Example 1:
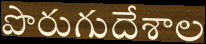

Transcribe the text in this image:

పొరుగుదేశాల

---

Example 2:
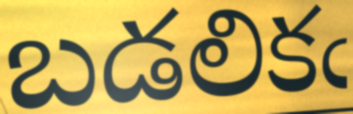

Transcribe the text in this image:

బడలికఁ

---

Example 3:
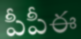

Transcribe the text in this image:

పీపీఈ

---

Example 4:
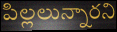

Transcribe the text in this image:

పిల్లలున్నారని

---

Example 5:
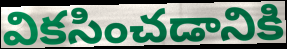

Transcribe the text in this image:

వికసించడానికి